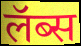
लॅब्स